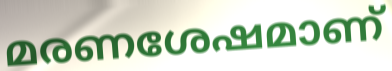
മരണശേഷമാണ്